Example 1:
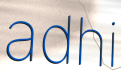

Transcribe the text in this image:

adhi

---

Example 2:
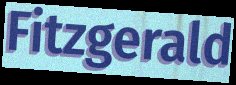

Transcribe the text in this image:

Fitzgerald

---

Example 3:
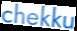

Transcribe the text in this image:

chekku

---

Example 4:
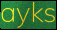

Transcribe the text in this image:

ayks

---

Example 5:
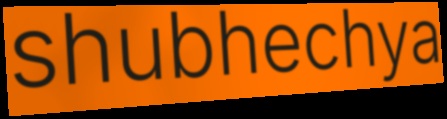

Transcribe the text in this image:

shubhechya